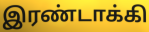
இரண்டாக்கி